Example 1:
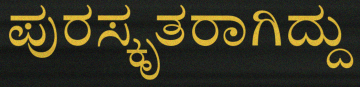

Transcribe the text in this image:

ಪುರಸ್ಕೃತರಾಗಿದ್ದು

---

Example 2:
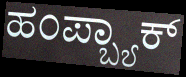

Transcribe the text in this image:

ಹಂಪ್ಬ್ಯಾಕ್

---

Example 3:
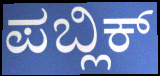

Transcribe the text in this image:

ಪಬ್ಲಿಕ್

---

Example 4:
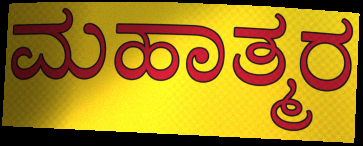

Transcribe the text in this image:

ಮಹಾತ್ಮರ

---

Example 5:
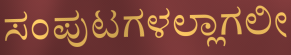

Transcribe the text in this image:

ಸಂಪುಟಗಳಲ್ಲಾಗಲೀ